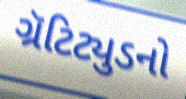
ગ્રૅટિટ્યુડનો